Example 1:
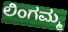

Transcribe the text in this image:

ಲಿಂಗಮ್ಮ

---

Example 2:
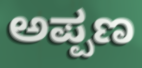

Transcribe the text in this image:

ಅಪ್ಪಣ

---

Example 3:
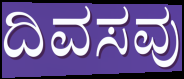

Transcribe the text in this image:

ದಿವಸವು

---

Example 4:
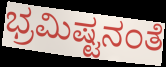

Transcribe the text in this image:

ಭ್ರಮಿಷ್ಟನಂತೆ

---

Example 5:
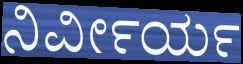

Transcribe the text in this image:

ನಿರ್ವೀರ್ಯ